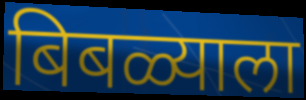
बिबळ्याला